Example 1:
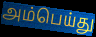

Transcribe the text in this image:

அம்பெய்து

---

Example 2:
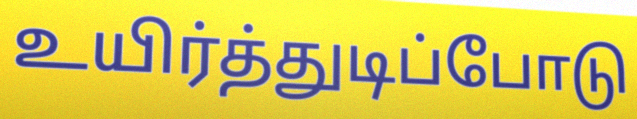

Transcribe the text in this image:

உயிர்த்துடிப்போடு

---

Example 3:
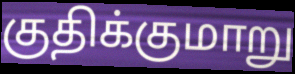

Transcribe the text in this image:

குதிக்குமாறு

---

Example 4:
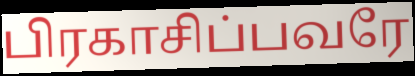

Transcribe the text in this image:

பிரகாசிப்பவரே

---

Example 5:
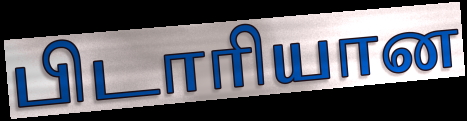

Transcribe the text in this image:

பிடாரியான